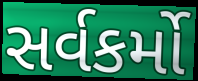
સર્વકર્મો